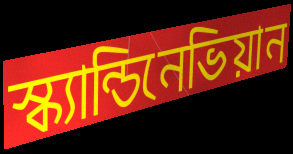
স্ক্যান্ডিনেভিয়ান